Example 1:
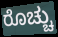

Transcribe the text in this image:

ರೊಚ್ಚು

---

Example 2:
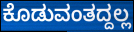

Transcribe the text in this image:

ಕೊಡುವಂತದ್ದಲ್ಲ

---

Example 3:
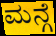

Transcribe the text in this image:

ಮನ್ಗೆ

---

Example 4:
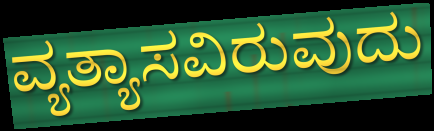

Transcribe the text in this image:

ವ್ಯತ್ಯಾಸವಿರುವುದು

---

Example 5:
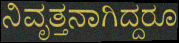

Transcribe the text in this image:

ನಿವೃತ್ತನಾಗಿದ್ದರೂ